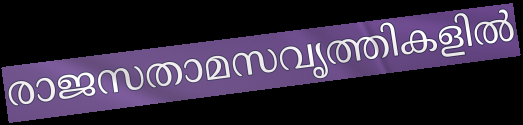
രാജസതാമസവൃത്തികളിൽ